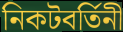
নিকটবর্তিনী